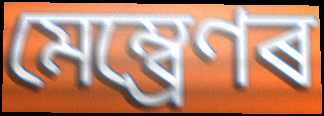
মেম্ব্ৰেণৰ